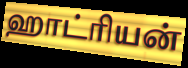
ஹாட்ரியன்